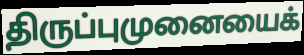
திருப்புமுனையைக்